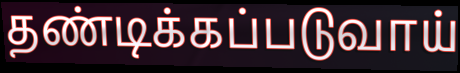
தண்டிக்கப்படுவாய்